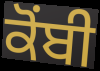
ਕੋਂਬੀ